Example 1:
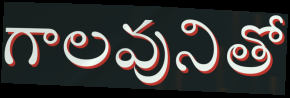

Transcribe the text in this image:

గాలవునితో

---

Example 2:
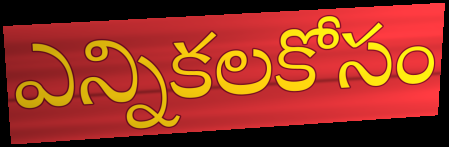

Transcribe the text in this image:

ఎన్నికలకోసం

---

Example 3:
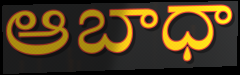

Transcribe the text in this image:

ఆబాధా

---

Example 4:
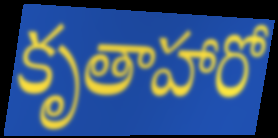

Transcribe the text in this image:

కృతాహారో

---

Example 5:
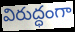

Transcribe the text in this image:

విరుద్ధంగా